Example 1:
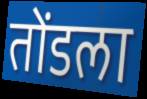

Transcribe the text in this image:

तोंडला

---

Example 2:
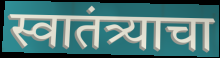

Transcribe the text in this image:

स्वातंत्र्याचा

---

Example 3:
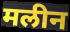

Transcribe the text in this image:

मलीन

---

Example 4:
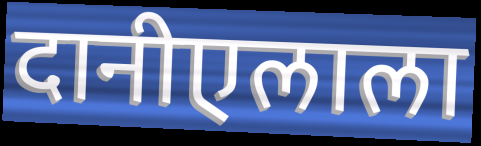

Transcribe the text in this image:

दानीएलाला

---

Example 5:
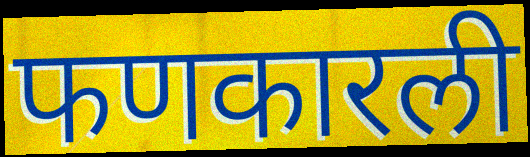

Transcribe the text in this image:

फणकारली